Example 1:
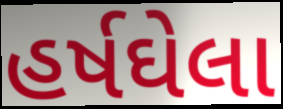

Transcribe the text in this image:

હર્ષઘેલા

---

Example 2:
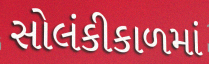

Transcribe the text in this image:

સોલંકીકાળમાં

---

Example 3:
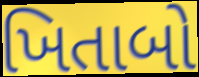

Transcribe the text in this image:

ખિતાબો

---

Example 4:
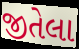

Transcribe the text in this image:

જીતેલા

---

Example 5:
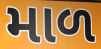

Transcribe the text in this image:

માળ